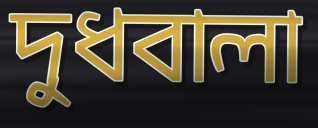
দুধবালা